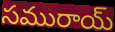
సమురాయ్